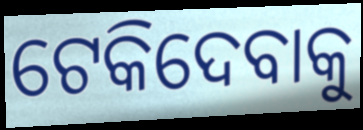
ଟେକିଦେବାକୁ